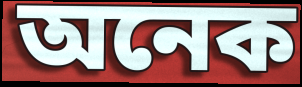
অনেক